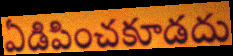
ఏడిపించకూడదు